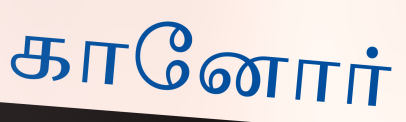
கானோர்